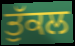
ਤੁੱਕਲ